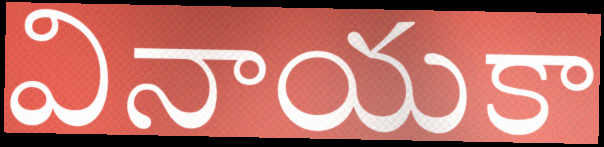
వినాయకా